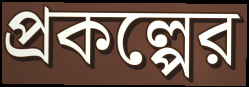
প্রকল্পের